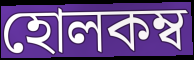
হোলকম্ব